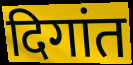
दिगांत